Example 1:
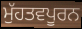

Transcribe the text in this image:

ਮੁੱਹਤਵਪੂਰਨ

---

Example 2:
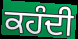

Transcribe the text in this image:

ਕਹੰਦੀ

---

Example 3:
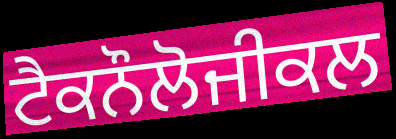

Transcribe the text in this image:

ਟੈਕਨੌਲੋਜੀਕਲ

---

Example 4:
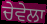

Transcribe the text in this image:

ਚੇਵੇਲਾ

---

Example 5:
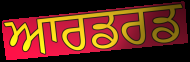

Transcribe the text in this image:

ਆਰਡਰਡ